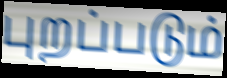
புறப்படும்